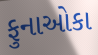
ફુનાઓકા